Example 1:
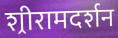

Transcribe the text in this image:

श्रीरामदर्शन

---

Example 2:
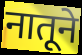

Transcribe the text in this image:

नातूने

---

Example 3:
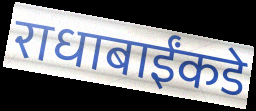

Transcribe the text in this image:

राधाबाईंकडे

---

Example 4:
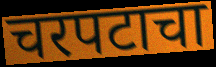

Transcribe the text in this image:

चरपटाचा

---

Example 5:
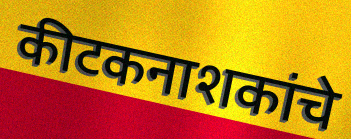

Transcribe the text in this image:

कीटकनाशकांचे